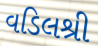
વડિલશ્રી